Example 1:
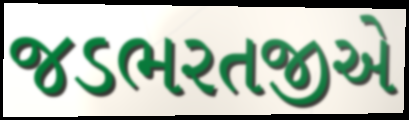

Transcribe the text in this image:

જડભરતજીએ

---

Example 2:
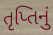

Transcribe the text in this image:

તૃપ્તિનું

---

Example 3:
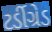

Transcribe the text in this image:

ટર્ડીગ્રેડ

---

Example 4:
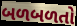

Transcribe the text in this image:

બળબળતો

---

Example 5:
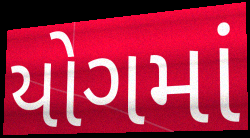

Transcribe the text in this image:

યોગમાં